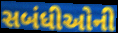
સબંધીઓની